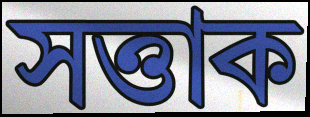
সত্তাক